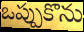
ఒప్పుకొను